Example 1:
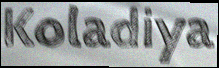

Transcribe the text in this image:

Koladiya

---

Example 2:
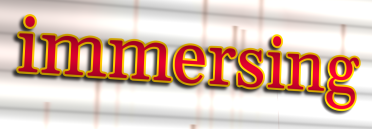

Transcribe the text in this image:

immersing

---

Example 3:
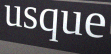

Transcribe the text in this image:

usque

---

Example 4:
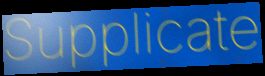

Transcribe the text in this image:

Supplicate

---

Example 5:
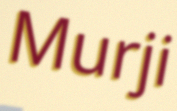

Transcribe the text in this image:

Murji